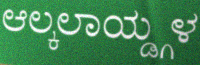
ಆಲ್ಕಲಾಯ್ಡ್ಗಳ